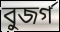
বুজর্গ